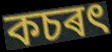
কচৰৎ